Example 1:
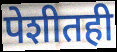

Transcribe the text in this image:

पेशीतही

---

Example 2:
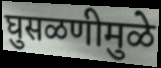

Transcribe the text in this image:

घुसळणीमुळे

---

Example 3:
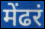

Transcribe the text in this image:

मेंढरं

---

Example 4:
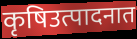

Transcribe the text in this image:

कृषिउत्पादनात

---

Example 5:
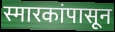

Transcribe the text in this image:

स्मारकांपासून